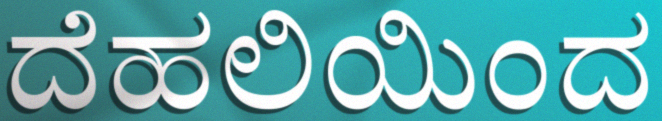
ದೆಹಲಿಯಿಂದ